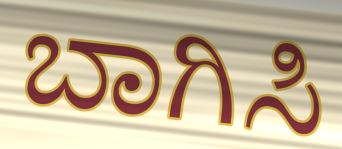
ಬಾಗಿಸಿ